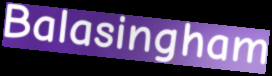
Balasingham